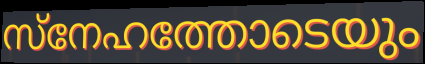
സ്നേഹത്തോടെയും